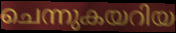
ചെന്നുകയറിയ